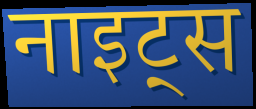
नाइट्‌स